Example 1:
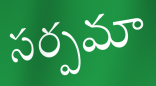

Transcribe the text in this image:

సర్పమా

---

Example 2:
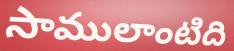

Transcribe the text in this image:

సాములాంటిది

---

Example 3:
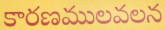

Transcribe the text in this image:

కారణములవలన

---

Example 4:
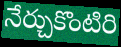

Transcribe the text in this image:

నేర్చుకొంటిరి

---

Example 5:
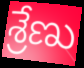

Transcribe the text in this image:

శ్రేణు